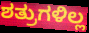
ಶತ್ರುಗಳಿಲ್ಲ